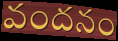
వందనం